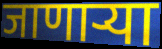
जाणार्‍या